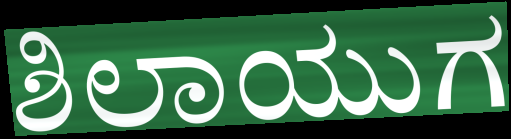
ಶಿಲಾಯುಗ